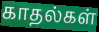
காதல்கள்